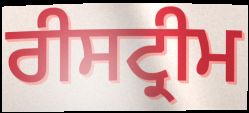
ਰੀਸਟ੍ਰੀਮ